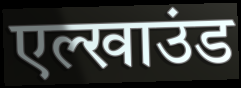
एल्खाउंड